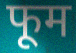
फूम